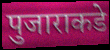
पुजाराकडे